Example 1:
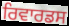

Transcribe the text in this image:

ਰਿਵਾਰਡਸ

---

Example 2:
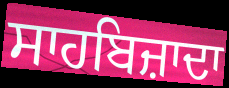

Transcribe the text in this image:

ਸਾਹਬਿਜ਼ਾਦਾ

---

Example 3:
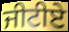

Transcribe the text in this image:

ਜੀਟੀਏ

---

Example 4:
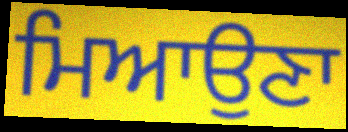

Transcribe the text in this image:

ਮਿਆਉਣਾ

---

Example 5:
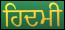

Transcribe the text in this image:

ਹਿਦਮੀ